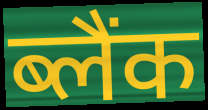
ब्लैंक